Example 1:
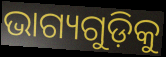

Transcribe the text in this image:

ଭାଗ୍ୟଗୁଡ଼ିକୁ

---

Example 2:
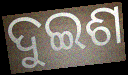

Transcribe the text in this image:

ଦୁଇଶ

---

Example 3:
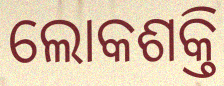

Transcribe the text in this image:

ଲୋକଶକ୍ତି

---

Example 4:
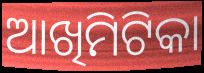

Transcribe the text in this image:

ଆଖିମିଟିକା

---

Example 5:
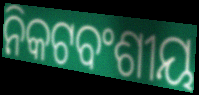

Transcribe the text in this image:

ନିକଟବଂଶୀୟ